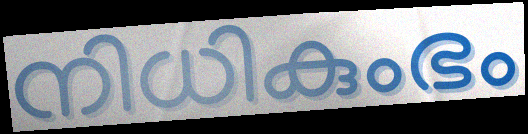
നിധികുംഭം